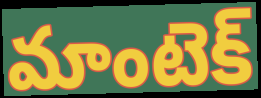
మాంటెక్